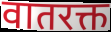
वातरक्त